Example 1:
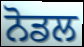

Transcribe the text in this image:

ਨੋਡਲ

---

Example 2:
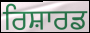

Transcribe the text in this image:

ਰਿਸ਼ਾਰਡ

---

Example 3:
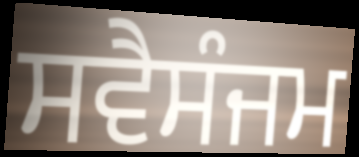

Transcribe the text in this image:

ਸਵੈਸੰਜਮ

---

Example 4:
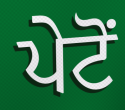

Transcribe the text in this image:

ਪੇਟੋਂ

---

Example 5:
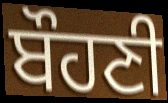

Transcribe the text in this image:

ਬੌਹਣੀ